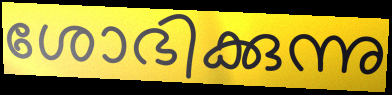
ശോഭിക്കുന്നു